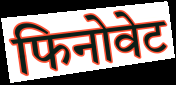
फिनोवेट